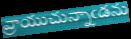
వ్రాయుచున్నాఁడను